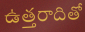
ఉత్తరాదితో